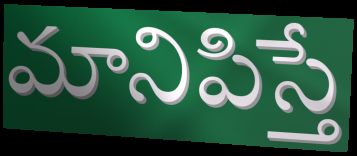
మానిపిస్తే